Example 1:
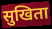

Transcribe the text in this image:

सुखिता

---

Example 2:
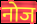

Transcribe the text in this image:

नोज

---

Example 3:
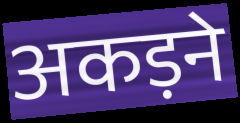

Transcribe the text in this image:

अकड़ने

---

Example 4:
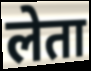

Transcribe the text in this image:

लेता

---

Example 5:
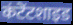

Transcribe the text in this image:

कंटेंटशाइड